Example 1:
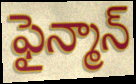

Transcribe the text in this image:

ఫైన్మాన్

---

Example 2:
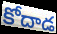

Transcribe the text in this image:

కోదాడ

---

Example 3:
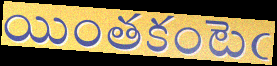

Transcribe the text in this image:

యింతకంటెఁ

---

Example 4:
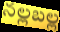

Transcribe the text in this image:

నల్లబల్ల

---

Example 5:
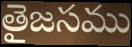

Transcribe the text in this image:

తైజసము